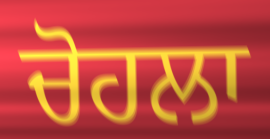
ਚੋਹਲਾ